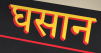
घसान